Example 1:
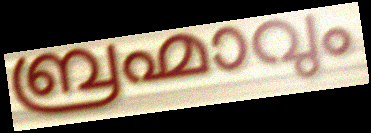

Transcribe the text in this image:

ബ്രഹ്മാവും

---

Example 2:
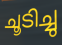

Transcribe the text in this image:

ചൂടിച്ചു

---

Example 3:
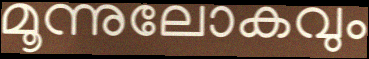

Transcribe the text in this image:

മൂന്നുലോകവും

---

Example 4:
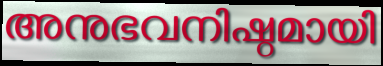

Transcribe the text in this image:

അനുഭവനിഷ്ഠമായി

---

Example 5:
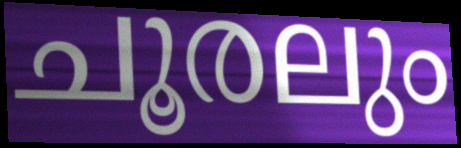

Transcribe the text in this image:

ചൂരലും